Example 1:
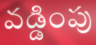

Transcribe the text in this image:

వడ్డింపు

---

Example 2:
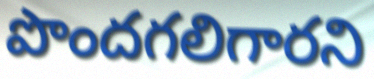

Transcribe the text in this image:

పొందగలిగారని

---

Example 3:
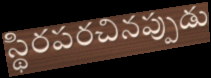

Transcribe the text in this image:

స్థిరపరచినప్పుడు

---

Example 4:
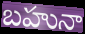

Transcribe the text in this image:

బహునా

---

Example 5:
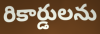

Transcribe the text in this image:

రికార్డులను